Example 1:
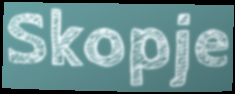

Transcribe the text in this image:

Skopje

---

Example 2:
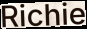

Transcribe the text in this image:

Richie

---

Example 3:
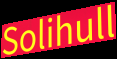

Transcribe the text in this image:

Solihull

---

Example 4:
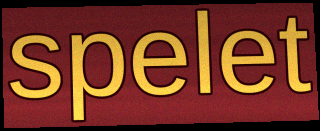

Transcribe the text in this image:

spelet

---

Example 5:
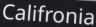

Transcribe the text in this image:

Califronia